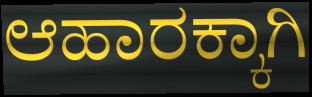
ಆಹಾರಕ್ಕಾಗಿ